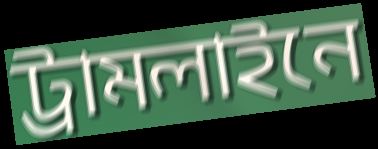
ট্রামলাইনে